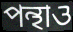
পন্থাও